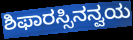
ಶಿಫಾರಸ್ಸಿನನ್ವಯ